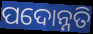
ପଦୋନ୍ନତି